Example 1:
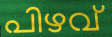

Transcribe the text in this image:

പിഴവ്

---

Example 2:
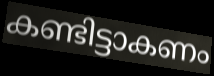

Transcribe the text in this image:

കണ്ടിട്ടാകണം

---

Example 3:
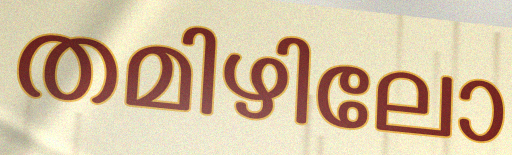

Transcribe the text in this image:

തമിഴിലോ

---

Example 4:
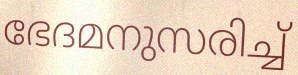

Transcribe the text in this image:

ഭേദമനുസരിച്ച്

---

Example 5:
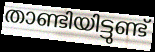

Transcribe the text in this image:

താണ്ടിയിട്ടുണ്ട്